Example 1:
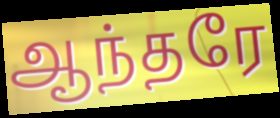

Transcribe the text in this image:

ஆந்தரே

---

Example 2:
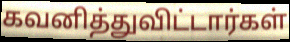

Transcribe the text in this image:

கவனித்துவிட்டார்கள்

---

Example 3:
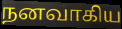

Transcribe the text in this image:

நனவாகிய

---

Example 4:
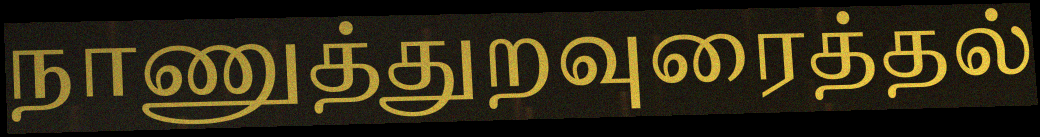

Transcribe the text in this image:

நாணுத்துறவுரைத்தல்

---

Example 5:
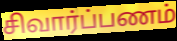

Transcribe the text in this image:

சிவார்ப்பணம்